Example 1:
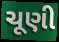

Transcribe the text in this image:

ચૂણી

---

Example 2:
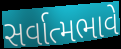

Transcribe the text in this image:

સર્વાત્મભાવે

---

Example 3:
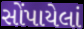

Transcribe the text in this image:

સોંપાયેલાં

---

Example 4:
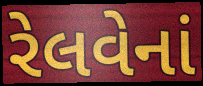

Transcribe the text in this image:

રેલવેનાં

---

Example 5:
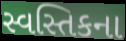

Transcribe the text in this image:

સ્વસ્તિકના